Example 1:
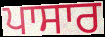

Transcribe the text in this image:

ਪਾਸਾਰ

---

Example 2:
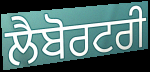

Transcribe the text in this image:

ਲੈਬੋਰਟਰੀ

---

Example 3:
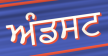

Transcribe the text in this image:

ਅੰਡਸਟ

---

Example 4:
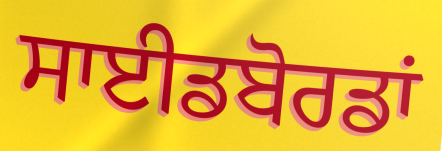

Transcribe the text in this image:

ਸਾਈਡਬੋਰਡਾਂ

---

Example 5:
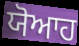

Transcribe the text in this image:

ਯੋਆਹ